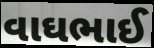
વાઘભાઈ